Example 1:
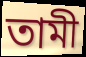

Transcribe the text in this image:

তামী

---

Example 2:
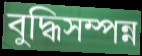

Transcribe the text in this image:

বুদ্ধিসম্পন্ন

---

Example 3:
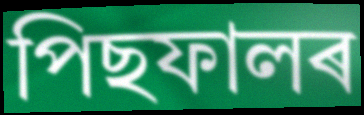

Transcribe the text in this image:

পিছফালৰ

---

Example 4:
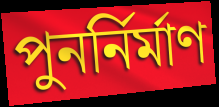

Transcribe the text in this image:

পুনৰ্নিৰ্মাণ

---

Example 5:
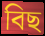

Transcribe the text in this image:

বিছ